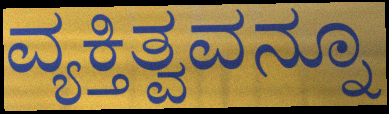
ವ್ಯಕ್ತಿತ್ವವನ್ನೂ